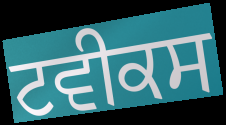
ਟਵੀਕਸ